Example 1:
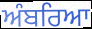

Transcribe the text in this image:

ਅੰਬਰਿਆ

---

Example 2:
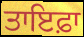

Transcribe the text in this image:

ਤਾਇਫ਼ਾ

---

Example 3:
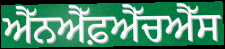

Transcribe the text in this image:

ਐੱਨਐੱਫ਼ਐੱਚਐੱਸ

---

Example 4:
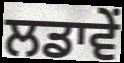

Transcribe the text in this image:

ਲਡਾਵੇਂ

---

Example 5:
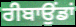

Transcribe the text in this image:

ਰੀਬਾਉਂਡਾਂ